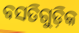
ବସତିଗୁଡ଼ିକ